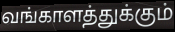
வங்காளத்துக்கும்